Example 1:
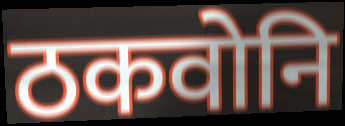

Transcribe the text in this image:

ठकवोनि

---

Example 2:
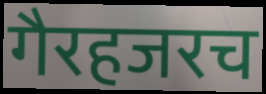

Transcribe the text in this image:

गैरहजरच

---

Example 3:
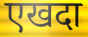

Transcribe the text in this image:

एखदा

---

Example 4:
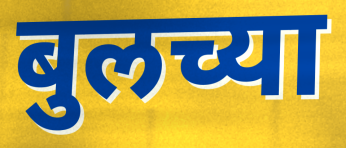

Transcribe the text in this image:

बुलच्या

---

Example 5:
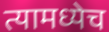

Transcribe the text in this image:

त्यामध्येच